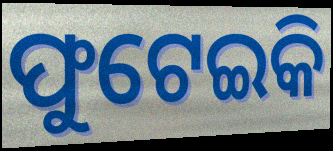
ଫୁଟେଇକି